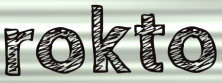
rokto